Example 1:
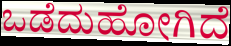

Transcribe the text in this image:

ಒಡೆದುಹೋಗಿದೆ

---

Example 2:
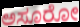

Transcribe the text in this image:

ಅಸೂರೋ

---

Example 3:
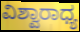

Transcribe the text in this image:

ವಿಶ್ವಾರಾಧ್ಯ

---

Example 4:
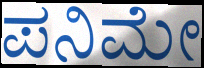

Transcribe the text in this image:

ಪನಿಮೇ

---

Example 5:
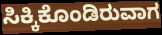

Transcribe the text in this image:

ಸಿಕ್ಕಿಕೊಂಡಿರುವಾಗ